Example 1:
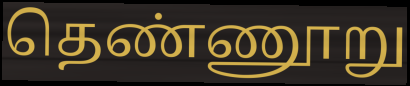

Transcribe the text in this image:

தெண்ணூறு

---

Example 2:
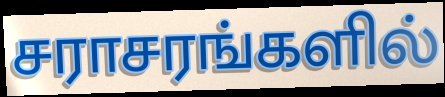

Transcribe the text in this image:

சராசரங்களில்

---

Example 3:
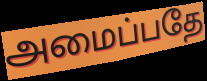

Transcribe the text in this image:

அமைப்பதே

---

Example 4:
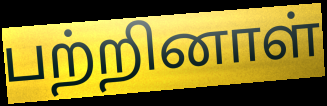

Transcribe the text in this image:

பற்றினாள்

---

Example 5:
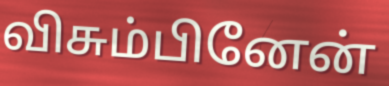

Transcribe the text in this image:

விசும்பினேன்